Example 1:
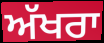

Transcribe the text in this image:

ਅੱਖਰਾ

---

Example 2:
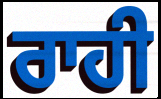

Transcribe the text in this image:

ਰਾਹੀ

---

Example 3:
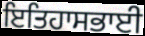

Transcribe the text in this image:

ਇਤਿਹਾਸਭਾਈ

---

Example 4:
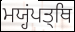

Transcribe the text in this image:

ਮਯ੍ਹਂਪਤ੍ਥਿ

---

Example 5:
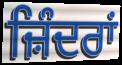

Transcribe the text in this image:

ਜ਼ਿੰਦਰਾਂ